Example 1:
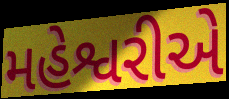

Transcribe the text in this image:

મહેશ્વરીએ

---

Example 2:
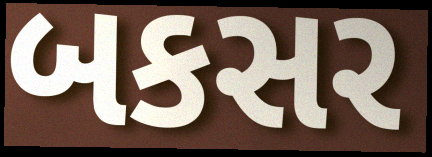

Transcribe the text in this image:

બકસર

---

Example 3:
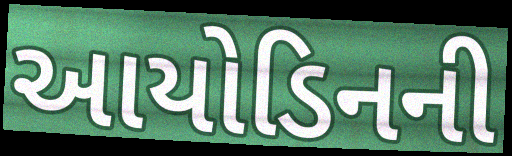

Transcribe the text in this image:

આયોડિનની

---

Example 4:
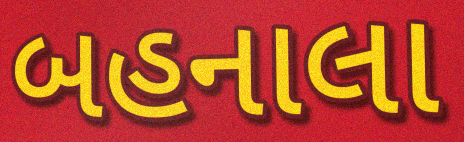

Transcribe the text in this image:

બહનાલા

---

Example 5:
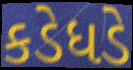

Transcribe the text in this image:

કડેધડે